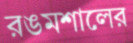
রঙমশালের